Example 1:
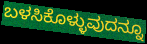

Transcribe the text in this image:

ಬಳಸಿಕೊಳ್ಳುವುದನ್ನೂ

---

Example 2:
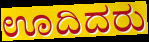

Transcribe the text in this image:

ಊದಿದರು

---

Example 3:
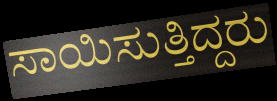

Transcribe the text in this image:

ಸಾಯಿಸುತ್ತಿದ್ದರು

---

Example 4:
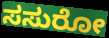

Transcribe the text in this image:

ಸಸುರೋ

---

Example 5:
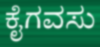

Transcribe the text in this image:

ಕೈಗವಸು